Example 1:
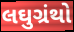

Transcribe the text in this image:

લઘુગ્રંથો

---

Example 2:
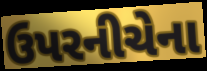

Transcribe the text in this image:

ઉપરનીચેના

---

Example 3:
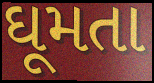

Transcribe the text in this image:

ઘૂમતા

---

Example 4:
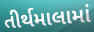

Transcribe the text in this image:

તીર્થમાલામાં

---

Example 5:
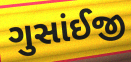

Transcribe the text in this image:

ગુસાંઈજી